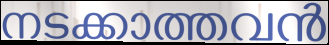
നടക്കാത്തവൻ